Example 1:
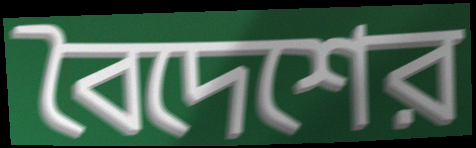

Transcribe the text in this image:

বৈদেশের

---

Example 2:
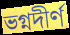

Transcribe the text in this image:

ভগ্নদীর্ণ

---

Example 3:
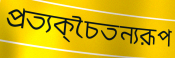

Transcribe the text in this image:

প্রত্যক্‌চৈতন্যরূপ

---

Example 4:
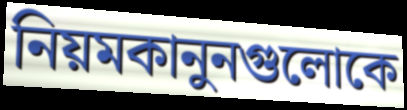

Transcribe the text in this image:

নিয়মকানুনগুলোকে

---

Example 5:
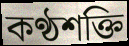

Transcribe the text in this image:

কণ্ঠশক্তি